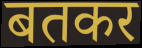
बतकर